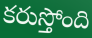
కరుస్తోంది